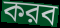
করব